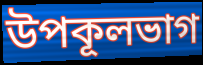
উপকূলভাগ